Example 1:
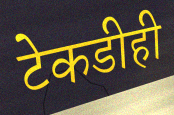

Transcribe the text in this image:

टेकडीही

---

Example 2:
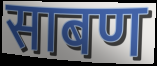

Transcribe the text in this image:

साबण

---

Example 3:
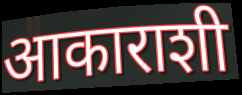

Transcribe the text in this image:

आकाराशी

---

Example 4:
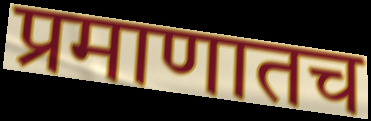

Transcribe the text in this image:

प्रमाणातच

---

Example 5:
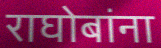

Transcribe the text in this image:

राघोबांना